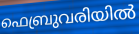
ഫെബ്രുവരിയിൽ